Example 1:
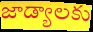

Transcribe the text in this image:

జాడ్యాలకు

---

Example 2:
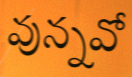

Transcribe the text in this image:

వున్నవో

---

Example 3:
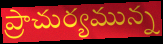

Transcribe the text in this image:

ప్రాచుర్యమున్న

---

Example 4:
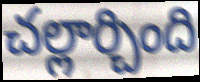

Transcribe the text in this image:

చల్లార్చింది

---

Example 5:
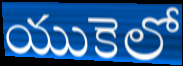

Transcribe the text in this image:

యుకెలో